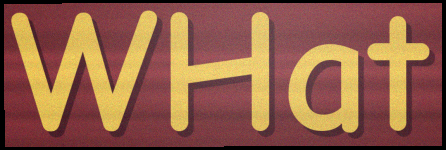
WHat